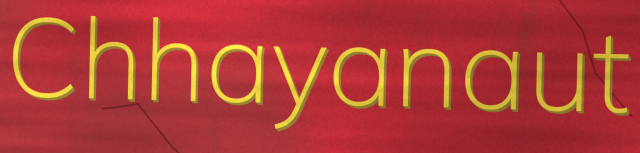
Chhayanaut